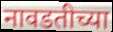
नावडतीच्या